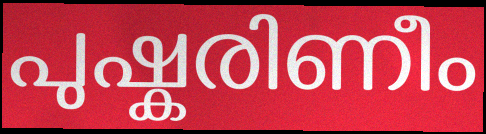
പുഷ്കരിണീം